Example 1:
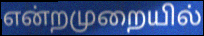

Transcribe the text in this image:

என்றமுறையில்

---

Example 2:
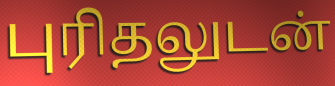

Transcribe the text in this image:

புரிதலுடன்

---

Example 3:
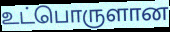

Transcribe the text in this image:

உட்பொருளான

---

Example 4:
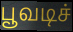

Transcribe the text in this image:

பூவடிச்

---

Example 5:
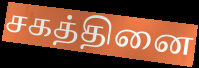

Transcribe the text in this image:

சகத்தினை